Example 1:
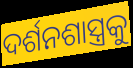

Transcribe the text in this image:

ଦର୍ଶନଶାସ୍ତ୍ରକୁ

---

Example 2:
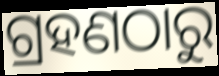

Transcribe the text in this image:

ଗ୍ରହଣଠାରୁ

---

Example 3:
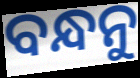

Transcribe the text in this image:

ବନ୍ଧନୁ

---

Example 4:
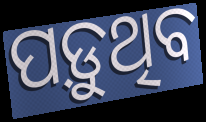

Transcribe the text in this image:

ପଡ଼ୁଥିବ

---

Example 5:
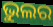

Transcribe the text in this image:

ଭୁଲର